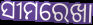
ସୀମରେଖା